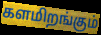
களமிறங்கும்